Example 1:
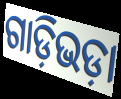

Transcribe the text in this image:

ଗାଡ଼ିଭଡ଼ା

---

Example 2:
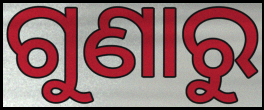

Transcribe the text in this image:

ଗୁଣାରୁ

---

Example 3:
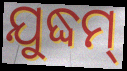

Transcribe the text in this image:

ଯୁଦ୍ଧମ୍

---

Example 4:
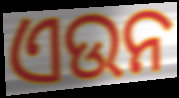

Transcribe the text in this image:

ଏଉନ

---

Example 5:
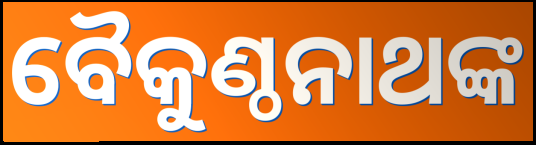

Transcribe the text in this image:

ବୈକୁଣ୍ଠନାଥଙ୍କ